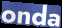
onda